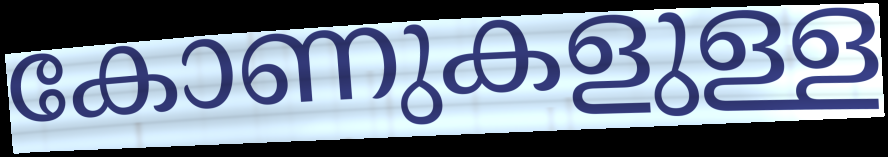
കോണുകളുള്ള